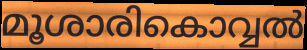
മൂശാരികൊവ്വൽ